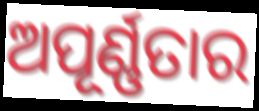
ଅପୂର୍ଣ୍ଣତାର